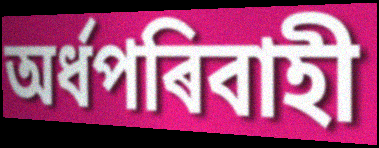
অৰ্ধপৰিবাহী